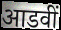
आडवीं